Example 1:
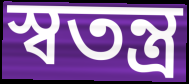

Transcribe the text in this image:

স্বতন্ত্র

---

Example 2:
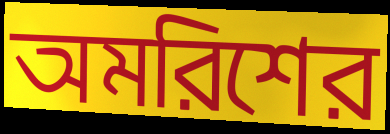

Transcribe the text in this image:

অমরিশের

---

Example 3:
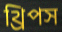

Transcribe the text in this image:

থ্রিপস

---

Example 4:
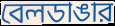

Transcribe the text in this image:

বেলডাঙার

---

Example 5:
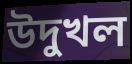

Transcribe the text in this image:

উদুখল